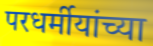
परधर्मीयांच्या